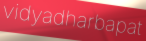
vidyadharbapat